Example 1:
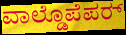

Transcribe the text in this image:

ವಾಲ್ಡೊಪೆಪರ್‍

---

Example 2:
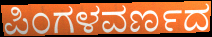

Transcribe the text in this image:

ಪಿಂಗಳವರ್ಣದ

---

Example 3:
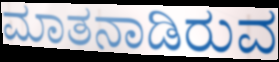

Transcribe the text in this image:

ಮಾತನಾಡಿರುವ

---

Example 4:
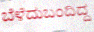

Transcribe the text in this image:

ಬೆಳೆದುಬಂದಿದ್ದ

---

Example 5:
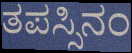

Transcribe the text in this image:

ತಪಸ್ಸಿನಂ